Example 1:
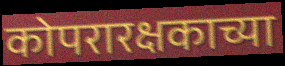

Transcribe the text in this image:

कोपरारक्षकाच्या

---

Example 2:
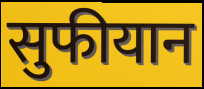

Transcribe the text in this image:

सुफीयान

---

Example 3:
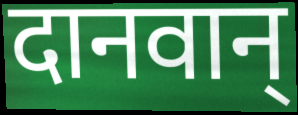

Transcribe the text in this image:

दानवान्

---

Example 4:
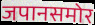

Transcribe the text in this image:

जपानसमोर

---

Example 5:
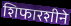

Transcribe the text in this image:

शिफारशीने